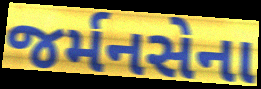
જર્મનસેના